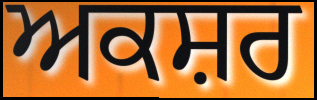
ਅਕਸ਼ਰ